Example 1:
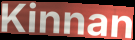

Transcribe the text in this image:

Kinnan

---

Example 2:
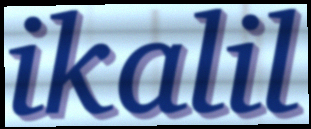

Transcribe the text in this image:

ikalil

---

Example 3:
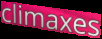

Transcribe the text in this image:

climaxes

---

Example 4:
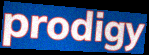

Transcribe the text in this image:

prodigy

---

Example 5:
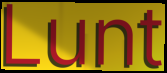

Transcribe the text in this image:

Lunt